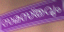
സമസ്‌തവും